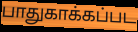
பாதுகாக்கப்பட